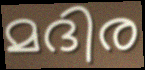
മദിര